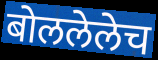
बोललेलेच